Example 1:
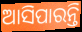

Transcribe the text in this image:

ଆସିପାରନ୍ତି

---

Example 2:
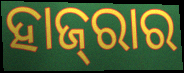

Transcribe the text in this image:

ହାଜ୍‌ରାର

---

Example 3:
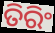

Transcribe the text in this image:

ତିରିଂ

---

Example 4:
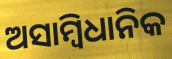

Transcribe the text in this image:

ଅସାମ୍ୱିଧାନିକ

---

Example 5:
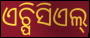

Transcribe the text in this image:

ଏଚ୍ପିସିଏଲ୍